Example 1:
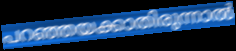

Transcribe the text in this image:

പറഞ്ഞയക്കാതിരുന്നാൽ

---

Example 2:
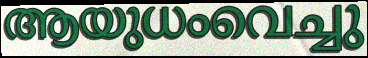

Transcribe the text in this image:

ആയുധംവെച്ചു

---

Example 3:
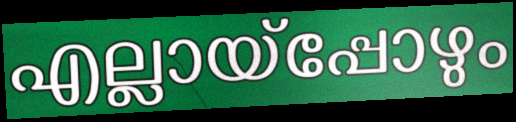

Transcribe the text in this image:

എല്ലായ്പ്പോഴും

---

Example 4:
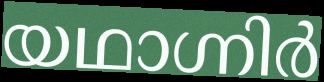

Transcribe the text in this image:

യഥാഗ്നിർ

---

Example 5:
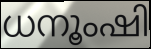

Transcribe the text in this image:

ധനൂംഷി